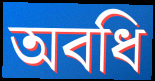
অবধি